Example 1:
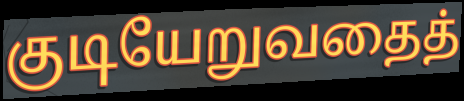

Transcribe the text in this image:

குடியேறுவதைத்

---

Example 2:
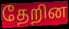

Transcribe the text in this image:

தேறின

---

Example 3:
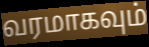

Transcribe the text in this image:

வரமாகவும்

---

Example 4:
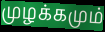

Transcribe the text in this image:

முழக்கமும்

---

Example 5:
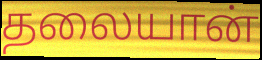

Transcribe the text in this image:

தலையான்